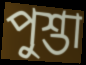
পুশ্তা